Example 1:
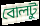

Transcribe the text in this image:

বোলটু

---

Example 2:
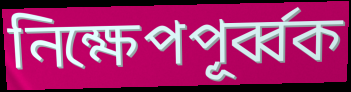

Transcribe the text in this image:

নিক্ষেপপূর্ব্বক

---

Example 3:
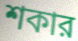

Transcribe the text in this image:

শকার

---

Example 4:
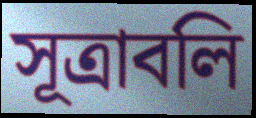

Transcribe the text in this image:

সূত্রাবলি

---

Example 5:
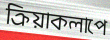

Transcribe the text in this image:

ক্রিয়াকলাপে